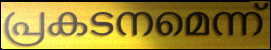
പ്രകടനമെന്ന്